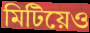
মিটিয়েও